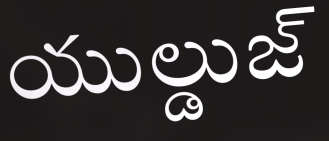
యుల్డుజ్